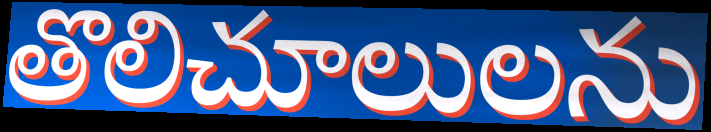
తొలిచూలులను